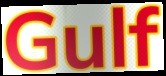
Gulf